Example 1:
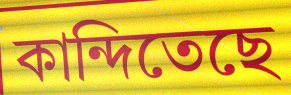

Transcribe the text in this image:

কান্দিতেছে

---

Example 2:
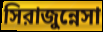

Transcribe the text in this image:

সিরাজুন্নেসা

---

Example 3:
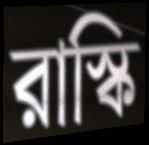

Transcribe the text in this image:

রাস্কি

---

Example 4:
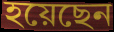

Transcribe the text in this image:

হয়েছেন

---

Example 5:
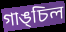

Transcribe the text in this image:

গাঙ্‌চিল